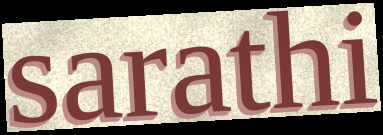
sarathi